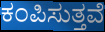
ಕಂಪಿಸುತ್ತವೆ